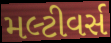
મલ્ટીવર્સ